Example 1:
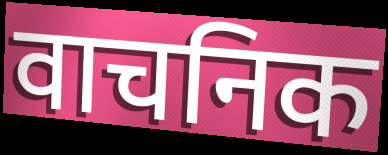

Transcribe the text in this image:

वाचनिक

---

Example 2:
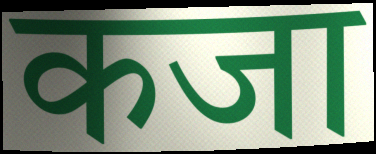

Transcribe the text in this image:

कजा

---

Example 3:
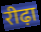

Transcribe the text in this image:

रीढ़ा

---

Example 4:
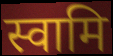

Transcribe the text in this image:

स्वामि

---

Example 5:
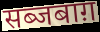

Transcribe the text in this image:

सब्जबाग़